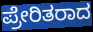
ಪ್ರೇರಿತರಾದ